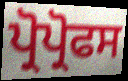
ਪ੍ਰੋਪ੍ਰੋਫਸ